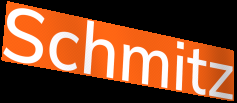
Schmitz